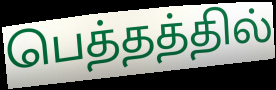
பெத்தத்தில்